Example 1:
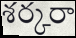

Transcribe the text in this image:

శర్కరా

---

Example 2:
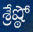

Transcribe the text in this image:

శ్రేష్ఠో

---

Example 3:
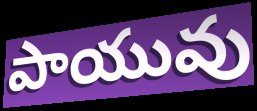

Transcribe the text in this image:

పాయువు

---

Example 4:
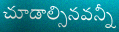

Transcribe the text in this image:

చూడాల్సినవన్నీ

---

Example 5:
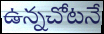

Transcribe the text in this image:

ఉన్నచోటనే